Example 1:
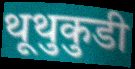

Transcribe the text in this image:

थूथुकुडी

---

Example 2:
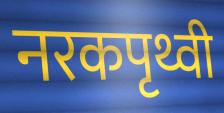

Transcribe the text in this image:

नरकपृथ्वी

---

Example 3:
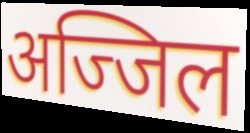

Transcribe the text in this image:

अज्जिल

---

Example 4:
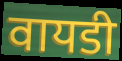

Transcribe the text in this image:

वायडी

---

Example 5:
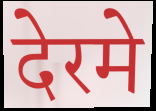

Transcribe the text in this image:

देरमे